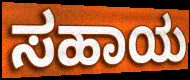
ಸಹಾಯ